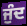
ਜੁੰਦ